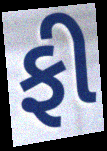
ફી